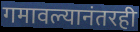
गमावल्यानंतरही